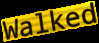
Walked